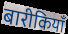
बारीकियाँ